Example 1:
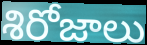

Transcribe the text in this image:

శిరోజాలు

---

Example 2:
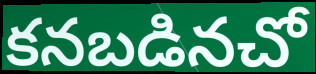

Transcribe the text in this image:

కనబడినచో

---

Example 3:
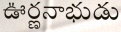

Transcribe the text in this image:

ఊర్ణనాభుడు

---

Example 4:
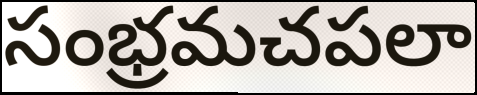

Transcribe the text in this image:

సంభ్రమచపలా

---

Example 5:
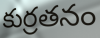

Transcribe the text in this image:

కుర్రతనం